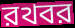
রথবর